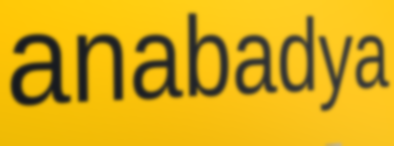
anabadya